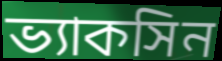
ভ্যাকসিন